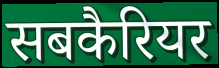
सबकैरियर